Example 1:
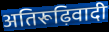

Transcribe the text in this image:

अतिरूढ़िवादी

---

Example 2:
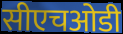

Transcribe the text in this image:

सीएचओडी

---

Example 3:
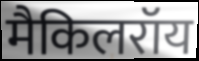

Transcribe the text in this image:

मैकिलरॉय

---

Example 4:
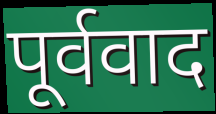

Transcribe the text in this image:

पूर्ववाद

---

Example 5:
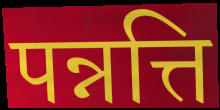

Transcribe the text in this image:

पन्नत्ति